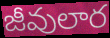
జీవులార